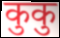
कुकु